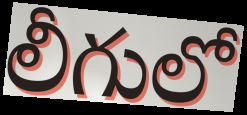
లీగులో